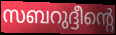
സബറുദ്ദീന്റെ